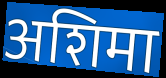
अशिमा